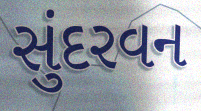
સુંદરવન